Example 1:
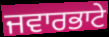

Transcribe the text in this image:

ਜਵਾਰਭਾਟੇ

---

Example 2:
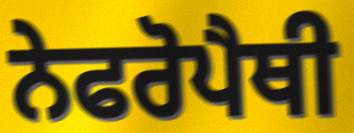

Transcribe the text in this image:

ਨੇਫਰੋਪੈਥੀ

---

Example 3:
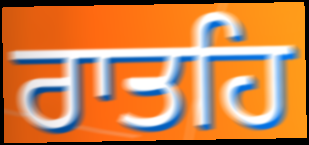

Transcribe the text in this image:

ਰਾਤਹਿ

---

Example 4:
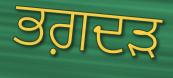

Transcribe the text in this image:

ਭਗ਼ਦੜ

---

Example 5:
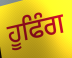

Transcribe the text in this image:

ਹੂਫਿੰਗ